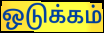
ஒடுக்கம்